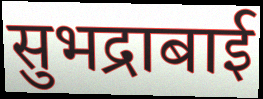
सुभद्राबाई